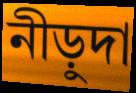
নীড়ুদা